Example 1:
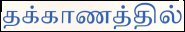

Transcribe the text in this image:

தக்காணத்தில்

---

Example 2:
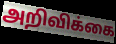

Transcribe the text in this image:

அறிவிக்கை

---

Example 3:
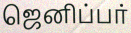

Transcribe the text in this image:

ஜெனிப்பர்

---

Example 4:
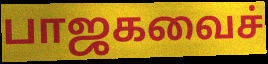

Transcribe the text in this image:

பாஜகவைச்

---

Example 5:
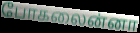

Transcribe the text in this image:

போகலைன்னா